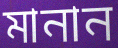
মানান